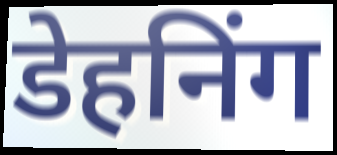
डेहनिंग